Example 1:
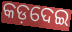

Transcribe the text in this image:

କଡ଼ଦେଇ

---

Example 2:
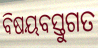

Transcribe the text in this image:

ବିଷୟବସ୍ତୁଗତ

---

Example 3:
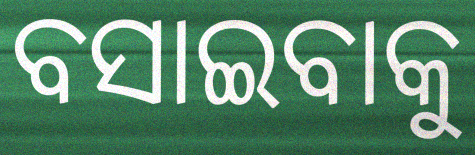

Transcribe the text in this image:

ବସାଇବାକୁ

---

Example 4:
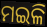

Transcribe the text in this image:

ମଇଳି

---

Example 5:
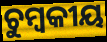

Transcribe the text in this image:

ଚୁମ୍ବକୀୟ